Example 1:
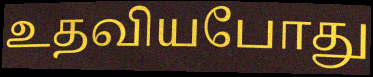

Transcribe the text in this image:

உதவியபோது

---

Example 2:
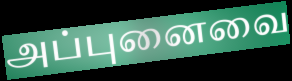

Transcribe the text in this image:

அப்புனைவை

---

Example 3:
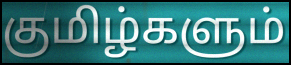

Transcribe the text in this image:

குமிழ்களும்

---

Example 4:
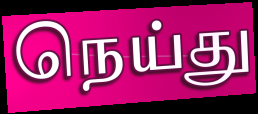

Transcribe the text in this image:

நெய்து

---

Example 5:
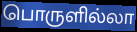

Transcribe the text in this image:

பொருளில்லா